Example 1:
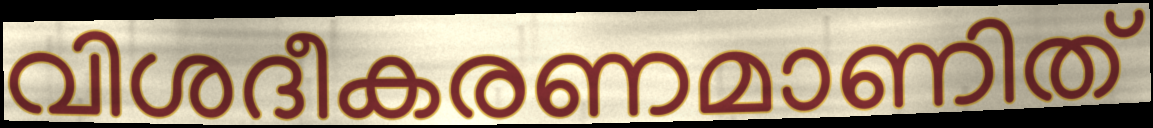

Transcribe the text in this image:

വിശദീകരണമാണിത്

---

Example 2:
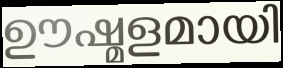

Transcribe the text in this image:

ഊഷ്മളമായി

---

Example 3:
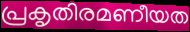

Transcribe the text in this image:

പ്രകൃതിരമണീയത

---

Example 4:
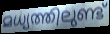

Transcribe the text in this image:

മധ്യത്തിലുണ്ട്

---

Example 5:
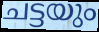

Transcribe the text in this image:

ചട്ടയും